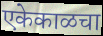
एकेकाळचा